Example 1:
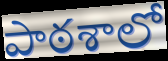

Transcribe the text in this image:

పాఠశాలో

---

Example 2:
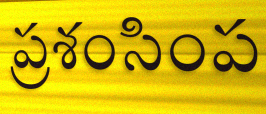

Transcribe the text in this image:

ప్రశంసింప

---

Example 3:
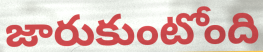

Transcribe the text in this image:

జారుకుంటోంది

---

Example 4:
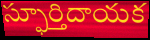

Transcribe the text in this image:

స్ఫూర్తిదాయక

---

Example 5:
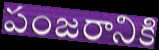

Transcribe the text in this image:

పంజరానికి